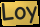
Loy